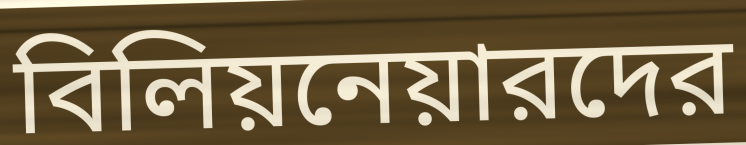
বিলিয়নেয়ারদের